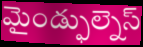
మైండ్ఫుల్నెస్